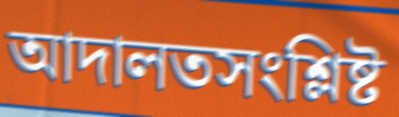
আদালতসংশ্লিষ্ট